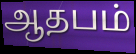
ஆதபம்